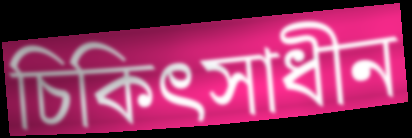
চিকিৎসাধীন